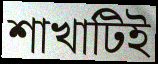
শাখাটিই